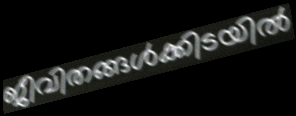
ജീവിതങ്ങൾക്കിടയിൽ